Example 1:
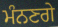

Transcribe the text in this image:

ਮੰਨਣਗੇ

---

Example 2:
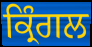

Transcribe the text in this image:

ਕ੍ਰਿੰਗਲ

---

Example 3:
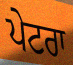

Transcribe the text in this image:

ਪੇਟਰਾ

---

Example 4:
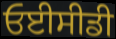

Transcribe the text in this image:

ਓਈਸੀਡੀ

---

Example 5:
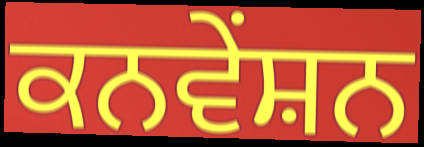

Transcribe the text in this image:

ਕਨਵੇਂਸ਼ਨ